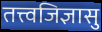
तत्त्वजिज्ञासु